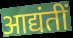
आद्यंतीं